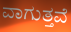
ವಾಗುತ್ತವೆ